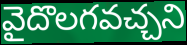
వైదొలగవచ్చని